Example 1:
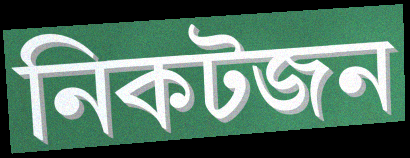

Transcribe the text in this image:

নিকটজন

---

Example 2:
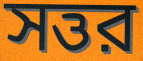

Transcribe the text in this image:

সত্তর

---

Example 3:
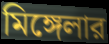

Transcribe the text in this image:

মিঙ্গেলার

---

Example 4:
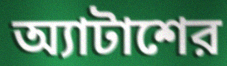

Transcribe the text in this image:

অ্যাটাশের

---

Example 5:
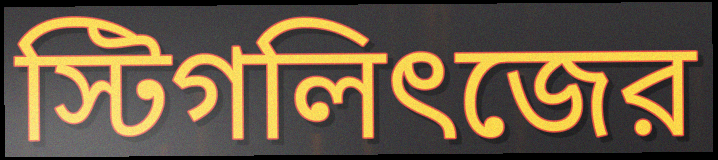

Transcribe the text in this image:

স্টিগলিৎজের